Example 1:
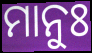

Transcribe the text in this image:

ମାନୁଃ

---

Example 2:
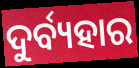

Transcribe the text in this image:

ଦୁର୍ବ୍ୟହାର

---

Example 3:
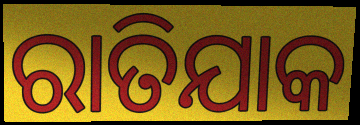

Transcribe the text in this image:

ରାତିଯାକ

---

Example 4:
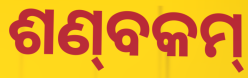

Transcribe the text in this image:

ଶଣ୍‌ବକମ୍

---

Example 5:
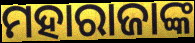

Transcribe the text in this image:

ମହାରାଜାଙ୍କ